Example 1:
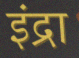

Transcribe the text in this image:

इंद्रा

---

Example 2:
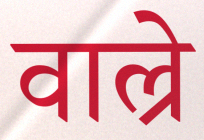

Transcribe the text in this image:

वाल्रे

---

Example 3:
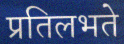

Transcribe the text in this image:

प्रतिलभते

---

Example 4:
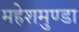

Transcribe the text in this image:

महेशमुण्डा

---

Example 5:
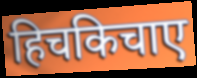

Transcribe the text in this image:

हिचकिचाए